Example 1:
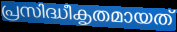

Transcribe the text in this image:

പ്രസിദ്ധീകൃതമായത്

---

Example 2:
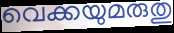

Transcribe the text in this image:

വെക്കയുമരുതു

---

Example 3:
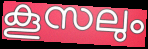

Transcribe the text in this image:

കൂസലും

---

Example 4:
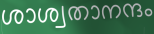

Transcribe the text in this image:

ശാശ്വതാനന്ദം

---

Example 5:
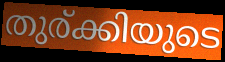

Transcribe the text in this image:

തുര്ക്കിയുടെ